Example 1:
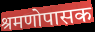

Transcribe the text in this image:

श्रमणोपासक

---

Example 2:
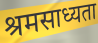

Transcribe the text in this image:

श्रमसाध्यता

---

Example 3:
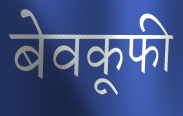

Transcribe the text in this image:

बेवकूफी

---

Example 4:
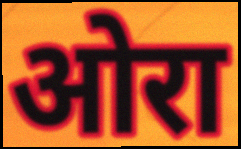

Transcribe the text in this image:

ओरा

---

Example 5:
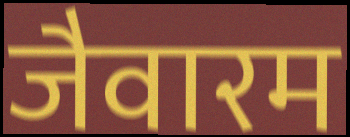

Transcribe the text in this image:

जैवारम